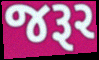
જરૂર